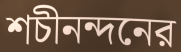
শচীনন্দনের